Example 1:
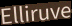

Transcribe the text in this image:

Elliruve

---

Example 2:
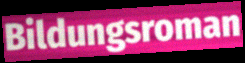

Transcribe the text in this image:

Bildungsroman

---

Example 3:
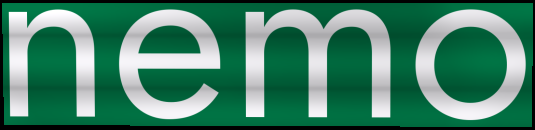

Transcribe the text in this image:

nemo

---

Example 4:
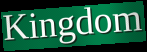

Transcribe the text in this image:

Kingdom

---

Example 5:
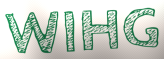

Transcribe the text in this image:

WIHG